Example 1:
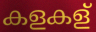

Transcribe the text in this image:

കളകള്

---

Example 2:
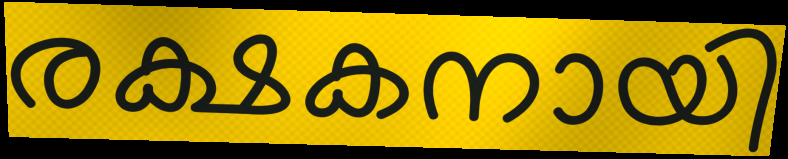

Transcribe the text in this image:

രക്ഷകനായി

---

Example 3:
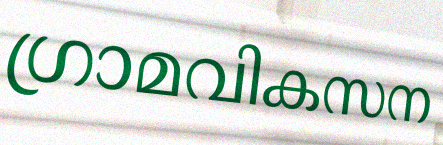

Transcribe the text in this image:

ഗ്രാമവികസന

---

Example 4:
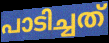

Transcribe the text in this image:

പാടിച്ചത്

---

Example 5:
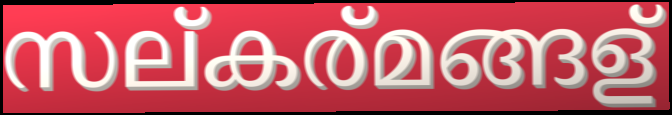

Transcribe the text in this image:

സല്കര്മങ്ങള്